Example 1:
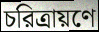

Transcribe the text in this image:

চরিত্রায়ণে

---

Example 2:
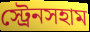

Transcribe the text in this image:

স্ট্রেনসহাম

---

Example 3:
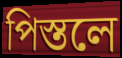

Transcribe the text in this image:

পিস্তলে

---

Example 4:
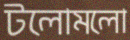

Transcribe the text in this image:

টলোমলো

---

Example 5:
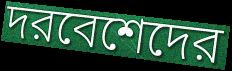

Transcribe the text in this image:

দরবেশেদের